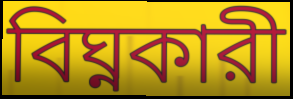
বিঘ্নকারী